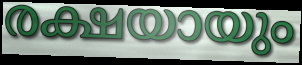
രക്ഷയായും